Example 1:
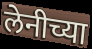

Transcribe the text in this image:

लेनीच्या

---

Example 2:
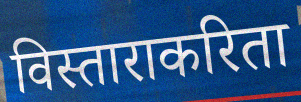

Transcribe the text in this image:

विस्ताराकरिता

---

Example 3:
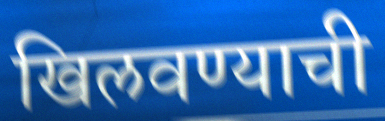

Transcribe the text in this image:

खिलवण्याची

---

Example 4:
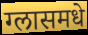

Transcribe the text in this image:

ग्लासमधे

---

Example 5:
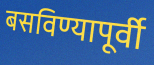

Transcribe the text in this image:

बसविण्यापूर्वी